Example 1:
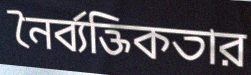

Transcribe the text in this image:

নৈর্ব্যক্তিকতার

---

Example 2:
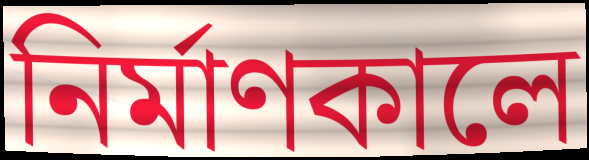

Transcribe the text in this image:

নির্মাণকালে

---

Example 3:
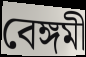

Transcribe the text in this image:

বেঙ্গমী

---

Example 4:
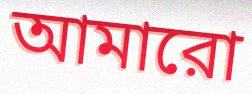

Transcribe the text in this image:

আমারো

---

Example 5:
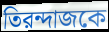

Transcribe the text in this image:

তিরন্দাজকে